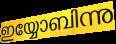
ഇയ്യോബിന്നു